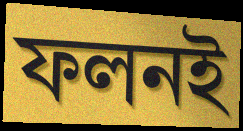
ফলনই